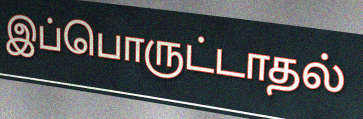
இப்பொருட்டாதல்